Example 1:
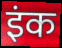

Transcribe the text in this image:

इंक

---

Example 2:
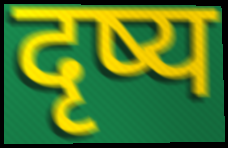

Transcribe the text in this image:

दृष्य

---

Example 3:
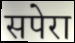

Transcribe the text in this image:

सपेरा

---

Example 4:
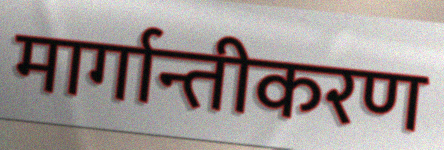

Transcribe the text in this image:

मार्गान्तीकरण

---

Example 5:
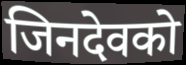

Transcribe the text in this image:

जिनदेवको